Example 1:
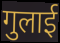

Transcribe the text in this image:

गुलाई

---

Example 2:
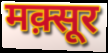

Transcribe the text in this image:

मक़्सूर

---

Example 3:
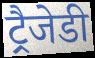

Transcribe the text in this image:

ट्रैजेडी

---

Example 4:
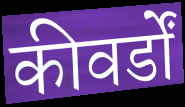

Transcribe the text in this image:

कीवर्डों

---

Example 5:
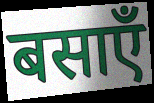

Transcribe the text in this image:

बसाएँ